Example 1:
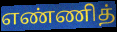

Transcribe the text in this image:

எண்ணித்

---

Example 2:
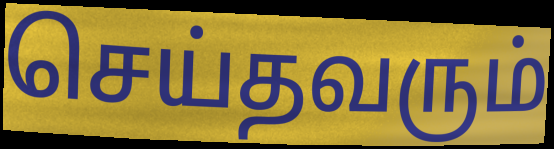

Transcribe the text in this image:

செய்தவரும்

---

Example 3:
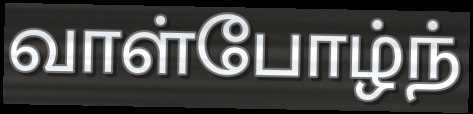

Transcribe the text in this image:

வாள்போழ்ந்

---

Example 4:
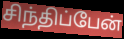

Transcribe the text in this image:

சிந்திப்பேன்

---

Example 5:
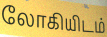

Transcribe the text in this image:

லோகியிடம்